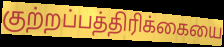
குற்றப்பத்திரிக்கையை